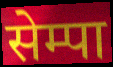
सेम्पा